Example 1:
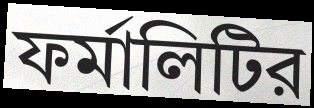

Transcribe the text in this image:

ফর্মালিটির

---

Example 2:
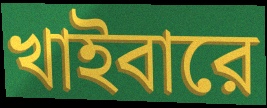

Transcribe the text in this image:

খাইবারে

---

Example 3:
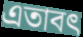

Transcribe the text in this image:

এতাবৎ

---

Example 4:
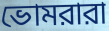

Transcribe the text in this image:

ভোমরারা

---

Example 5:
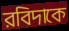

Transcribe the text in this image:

রবিদাকে